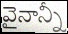
వైనాన్నీ